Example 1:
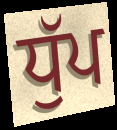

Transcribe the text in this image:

ਧੁੱਪ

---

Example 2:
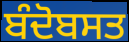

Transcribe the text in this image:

ਬੰਦੋਬਸਤ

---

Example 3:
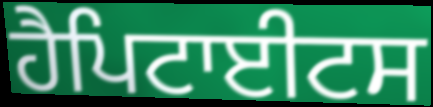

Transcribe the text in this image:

ਹੈਪਿਟਾਈਟਸ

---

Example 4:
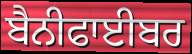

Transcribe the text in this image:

ਬੈਨੀਫਾਈਬਰ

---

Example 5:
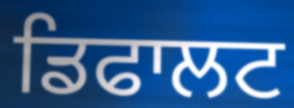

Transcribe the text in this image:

ਡਿਫਾਲਟ